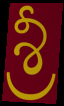
శ్రీ